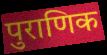
पुराणिक